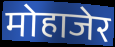
मोहाजेर